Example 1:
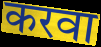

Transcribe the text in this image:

करवा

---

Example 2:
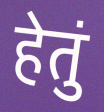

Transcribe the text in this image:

हेतुं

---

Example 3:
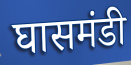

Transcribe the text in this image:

घासमंडी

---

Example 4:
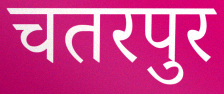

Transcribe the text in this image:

चतरपुर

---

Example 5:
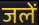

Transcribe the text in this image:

जलें